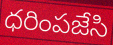
ధరింపజేసి